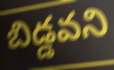
బిడ్డవని